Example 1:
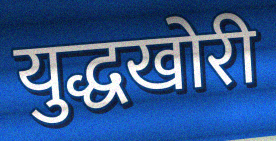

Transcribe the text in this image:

युद्धखोरी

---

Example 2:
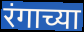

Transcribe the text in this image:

रंगाच्या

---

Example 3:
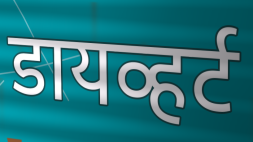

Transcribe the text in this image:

डायव्हर्ट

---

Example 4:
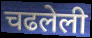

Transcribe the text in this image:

चढलेली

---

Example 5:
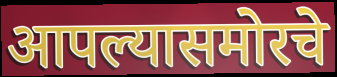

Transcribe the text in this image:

आपल्यासमोरचे